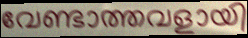
വേണ്ടാത്തവളായി